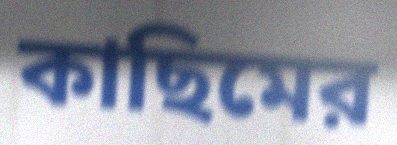
কাছিমের